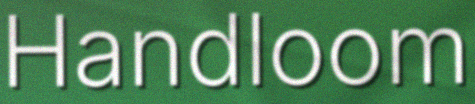
Handloom